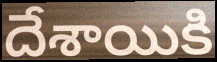
దేశాయికి